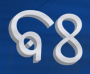
ଵଃ